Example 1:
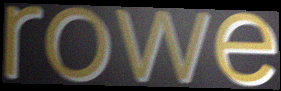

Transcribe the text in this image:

rowe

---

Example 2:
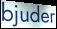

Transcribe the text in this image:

bjuder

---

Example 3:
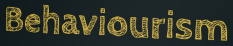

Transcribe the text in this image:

Behaviourism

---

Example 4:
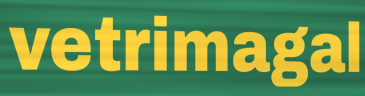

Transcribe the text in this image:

vetrimagal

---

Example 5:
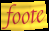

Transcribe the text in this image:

foote